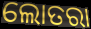
ଲୋତରା